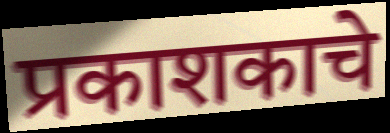
प्रकाशकाचे